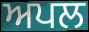
ਅਪਲ